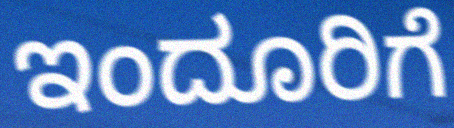
ಇಂದೂರಿಗೆ